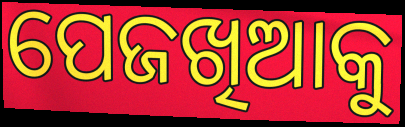
ପେଜଖିଆକୁ